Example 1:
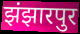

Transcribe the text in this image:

झंझारपुर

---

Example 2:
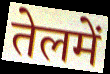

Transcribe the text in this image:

तेलमें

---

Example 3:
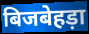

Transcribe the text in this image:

बिजबेहड़ा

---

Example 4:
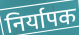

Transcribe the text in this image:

निर्यापक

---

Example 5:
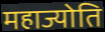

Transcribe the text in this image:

महाज्योति